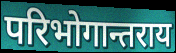
परिभोगान्तराय